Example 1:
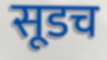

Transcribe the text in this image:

सूडच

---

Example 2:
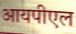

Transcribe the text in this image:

आयपीएल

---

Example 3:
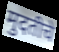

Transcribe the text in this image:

मुदतीचे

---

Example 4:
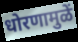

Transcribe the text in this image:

धोरणामुळें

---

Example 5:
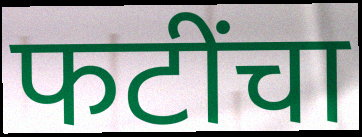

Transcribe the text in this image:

फटींचा